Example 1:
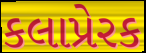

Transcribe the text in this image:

કલાપ્રેરક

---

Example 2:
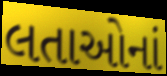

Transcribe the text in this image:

લતાઓનાં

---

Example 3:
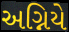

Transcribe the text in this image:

અગ્નિયે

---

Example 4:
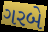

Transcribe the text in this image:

ગરબે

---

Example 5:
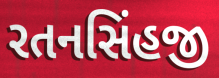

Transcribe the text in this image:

રતનસિંહજી